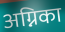
अग्निका